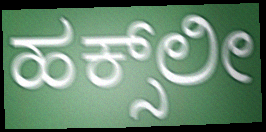
ಹಕ್ಸ್‌ಲೀ